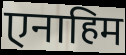
एनाहिम